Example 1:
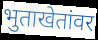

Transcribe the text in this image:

भुताखेतांवर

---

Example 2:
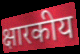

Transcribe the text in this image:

क्षारकीय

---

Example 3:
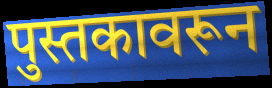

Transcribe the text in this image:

पुस्तकावरून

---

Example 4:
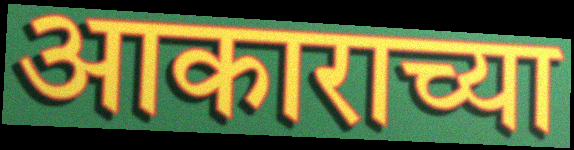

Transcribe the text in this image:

आकाराच्या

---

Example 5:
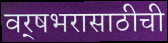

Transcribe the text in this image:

वर्षभरासाठीची